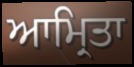
ਆਮ੍ਰਿਤਾ